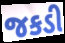
જકડી